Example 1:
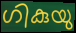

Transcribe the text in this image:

ഗികുയു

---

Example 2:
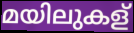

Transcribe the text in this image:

മയിലുകള്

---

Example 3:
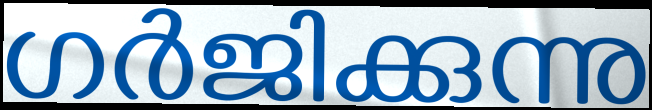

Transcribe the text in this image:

ഗർജിക്കുന്നു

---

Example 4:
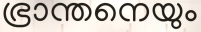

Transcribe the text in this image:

ഭ്രാന്തനെയും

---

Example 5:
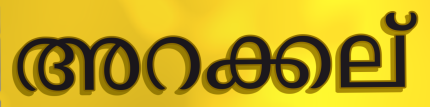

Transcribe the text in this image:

അറക്കല്